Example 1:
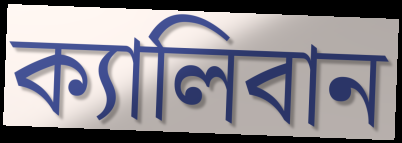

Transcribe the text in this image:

ক্যালিবান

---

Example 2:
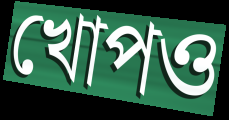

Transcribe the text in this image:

খোপও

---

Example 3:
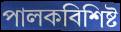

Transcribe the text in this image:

পালকবিশিষ্ট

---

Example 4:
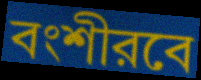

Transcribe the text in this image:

বংশীরবে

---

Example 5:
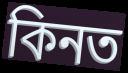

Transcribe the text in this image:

কিনত